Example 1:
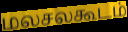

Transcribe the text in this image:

மலசலகூடம்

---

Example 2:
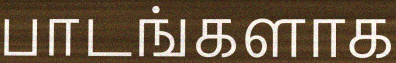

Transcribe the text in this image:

பாடங்களாக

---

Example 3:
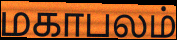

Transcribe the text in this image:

மகாபலம்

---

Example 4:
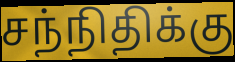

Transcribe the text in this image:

சந்நிதிக்கு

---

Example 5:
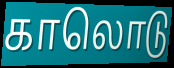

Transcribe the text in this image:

காலொடு